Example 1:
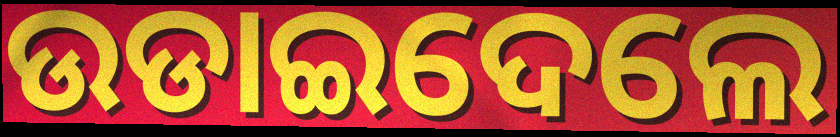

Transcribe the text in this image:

ଉଡାଇଦେଲେ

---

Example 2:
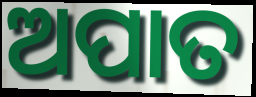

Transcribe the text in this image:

ଅପାତ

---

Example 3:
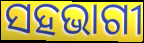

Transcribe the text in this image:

ସହଭାଗୀ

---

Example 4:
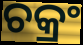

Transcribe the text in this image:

ଚକ୍ରଂ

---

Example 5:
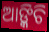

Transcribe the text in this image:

ଆଙ୍କିଚି